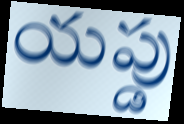
యప్డు